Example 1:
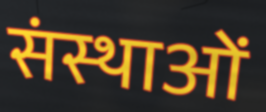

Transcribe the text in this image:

संस्थाओं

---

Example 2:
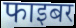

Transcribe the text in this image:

फाइबर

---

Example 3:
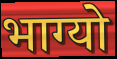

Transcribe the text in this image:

भाग्यो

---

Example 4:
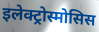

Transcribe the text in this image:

इलेक्ट्रोस्मोसिस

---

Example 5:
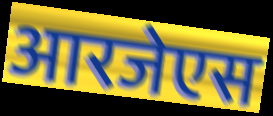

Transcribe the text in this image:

आरजेएस